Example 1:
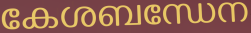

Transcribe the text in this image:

കേശബന്ധേന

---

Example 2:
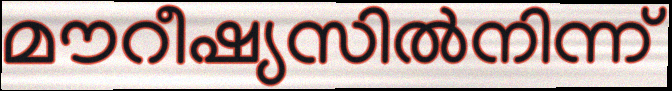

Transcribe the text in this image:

മൗറീഷ്യസിൽനിന്ന്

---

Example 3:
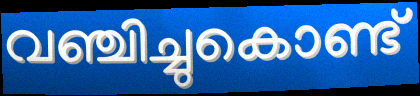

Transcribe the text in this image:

വഞ്ചിച്ചുകൊണ്ട്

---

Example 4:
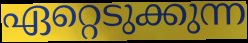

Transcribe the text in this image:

ഏറ്റെടുക്കുന്ന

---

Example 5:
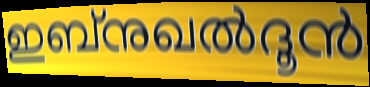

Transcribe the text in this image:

ഇബ്നുഖൽദൂൻ